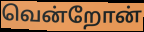
வென்றோன்